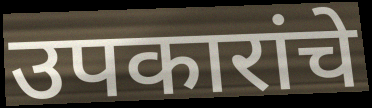
उपकारांचे